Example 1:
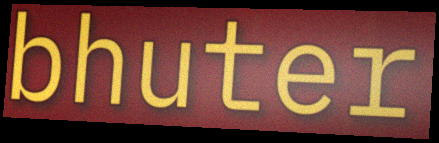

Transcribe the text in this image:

bhuter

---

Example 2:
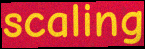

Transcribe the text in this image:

scaling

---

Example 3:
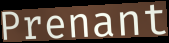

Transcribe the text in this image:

Prenant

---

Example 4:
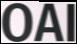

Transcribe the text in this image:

OAI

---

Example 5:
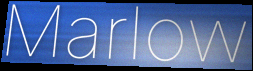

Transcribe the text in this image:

Marlow